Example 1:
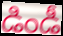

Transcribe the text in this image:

డిండీ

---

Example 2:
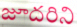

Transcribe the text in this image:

జూదరిని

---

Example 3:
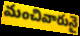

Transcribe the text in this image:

మంచివారునై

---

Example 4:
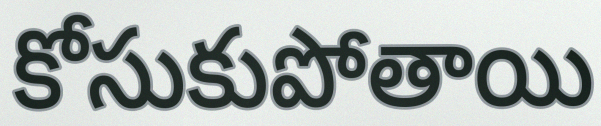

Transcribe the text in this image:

కోసుకుపోతాయి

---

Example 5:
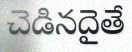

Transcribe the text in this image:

చెడినదైతే